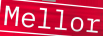
Mellor